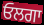
ਓਲਗਾ